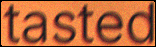
tasted